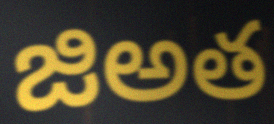
జిఅత